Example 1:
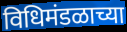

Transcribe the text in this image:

विधिमंडळाच्या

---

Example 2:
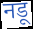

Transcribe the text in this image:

नडू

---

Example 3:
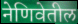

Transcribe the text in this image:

नेणिवेतील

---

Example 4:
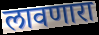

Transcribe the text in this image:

लावणारा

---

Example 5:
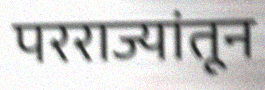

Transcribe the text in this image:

परराज्यांतून